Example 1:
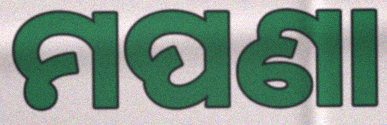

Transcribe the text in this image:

ମପଣା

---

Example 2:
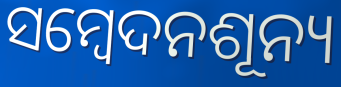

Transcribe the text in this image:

ସମ୍ବେଦନଶୂନ୍ୟ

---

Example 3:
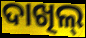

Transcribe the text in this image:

ଦାଖିଲ୍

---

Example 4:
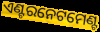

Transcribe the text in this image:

ଏଣ୍ଟରନେଟମେଣ୍ଟ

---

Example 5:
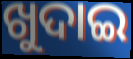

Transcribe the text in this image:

ଖୁଦାଇ